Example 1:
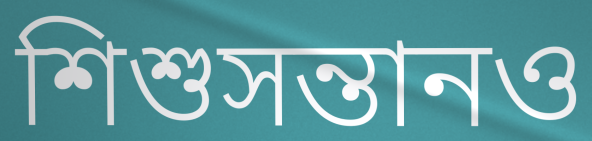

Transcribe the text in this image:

শিশুসন্তানও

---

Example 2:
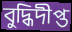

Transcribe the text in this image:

বুদ্ধিদীপ্ত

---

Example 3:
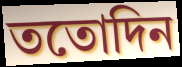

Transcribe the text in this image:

ততোদিন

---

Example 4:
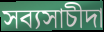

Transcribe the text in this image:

সব্যসাচীদা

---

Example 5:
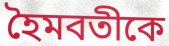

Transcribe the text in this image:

হৈমবতীকে